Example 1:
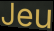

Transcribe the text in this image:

Jeu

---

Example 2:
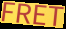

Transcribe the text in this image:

FRET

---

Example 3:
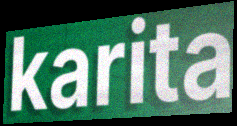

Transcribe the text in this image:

karita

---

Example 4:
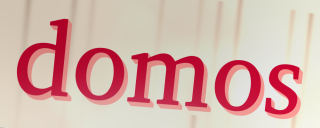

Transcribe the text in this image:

domos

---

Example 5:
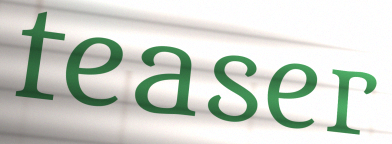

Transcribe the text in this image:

teaser